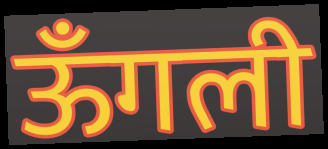
ऊँगली